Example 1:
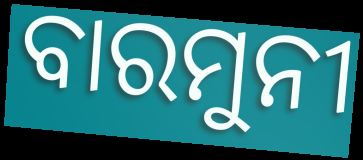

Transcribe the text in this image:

ବାରମୁନୀ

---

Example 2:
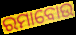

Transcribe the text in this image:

ରମାବୋଉ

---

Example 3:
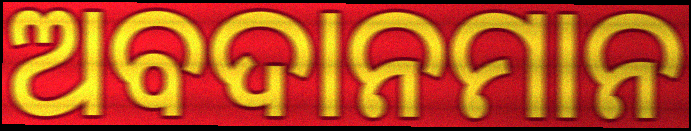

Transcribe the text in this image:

ଅବଦାନମାନ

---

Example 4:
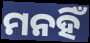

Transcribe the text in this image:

ମନହିଁ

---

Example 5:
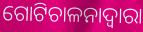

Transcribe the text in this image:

ଗୋଟିଚାଳନାଦ୍ୱାରା